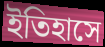
ইতিহাসে